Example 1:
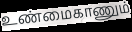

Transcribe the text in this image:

உண்மைகாணும்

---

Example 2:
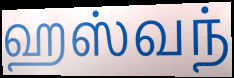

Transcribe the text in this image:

ஹஸ்வந்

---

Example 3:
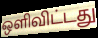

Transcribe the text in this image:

ஒளிவிட்டது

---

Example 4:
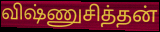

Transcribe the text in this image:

விஷ்ணுசித்தன்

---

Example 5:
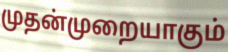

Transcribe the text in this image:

முதன்முறையாகும்